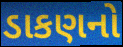
ડાકણનો